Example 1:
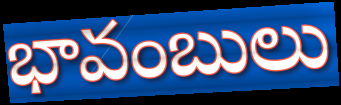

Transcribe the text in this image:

భావంబులు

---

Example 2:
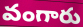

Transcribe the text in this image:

వంగారు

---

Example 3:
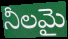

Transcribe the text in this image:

నీలమై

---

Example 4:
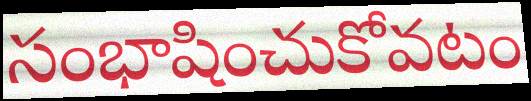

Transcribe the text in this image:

సంభాషించుకోవటం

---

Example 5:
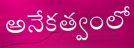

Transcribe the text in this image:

అనేకత్వంలో